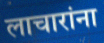
लाचारांना